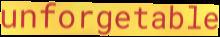
unforgetable